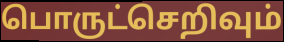
பொருட்செறிவும்